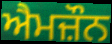
ਐਮਜ਼ੌਨ